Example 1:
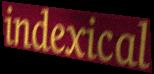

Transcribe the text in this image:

indexical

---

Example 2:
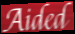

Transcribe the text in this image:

Aided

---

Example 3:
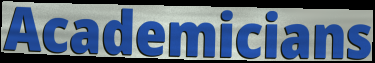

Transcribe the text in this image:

Academicians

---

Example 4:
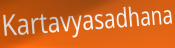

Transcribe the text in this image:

Kartavyasadhana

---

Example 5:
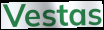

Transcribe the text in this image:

Vestas